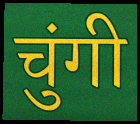
चुंगी